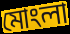
মোংলা